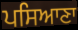
ਪਸਿਆਣਾ